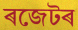
ৰজেটৰ